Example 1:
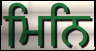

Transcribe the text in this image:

ਮਿਨਿ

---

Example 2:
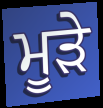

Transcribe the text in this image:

ਮੂੜੇ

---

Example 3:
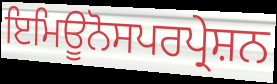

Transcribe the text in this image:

ਇਮਿਊਨੋਸਪਰਪ੍ਰੇਸ਼ਨ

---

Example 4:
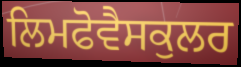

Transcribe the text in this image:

ਲਿਮਫੋਵੈਸਕੁਲਰ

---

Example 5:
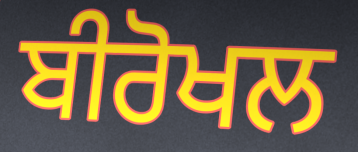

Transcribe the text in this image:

ਬੀਰੋਖਲ